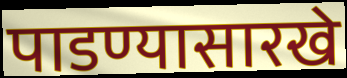
पाडण्यासारखे